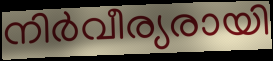
നിർവീര്യരായി